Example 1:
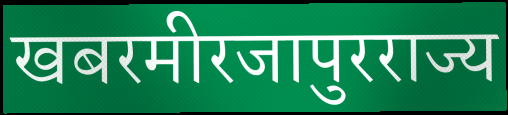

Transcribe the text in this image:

खबरमीरजापुरराज्य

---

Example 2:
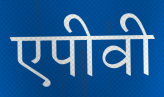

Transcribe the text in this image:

एपीवी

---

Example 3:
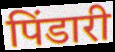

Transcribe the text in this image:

पिंडारी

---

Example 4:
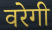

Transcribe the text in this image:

वरेगी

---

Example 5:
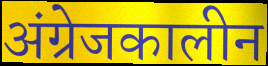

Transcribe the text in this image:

अंग्रेजकालीन